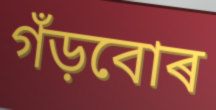
গঁড়বোৰ